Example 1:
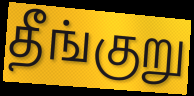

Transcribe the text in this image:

தீங்குறு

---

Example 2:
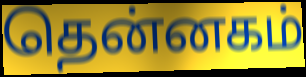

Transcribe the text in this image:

தென்னகம்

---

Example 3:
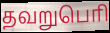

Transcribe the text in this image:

தவறுபெரி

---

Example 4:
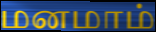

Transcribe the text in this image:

மனமாம்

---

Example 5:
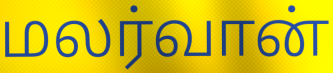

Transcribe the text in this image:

மலர்வான்